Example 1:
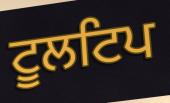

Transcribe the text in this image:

ਟੂਲਟਿਪ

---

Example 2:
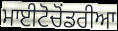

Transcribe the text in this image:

ਮਾਈਟੋਚੋਂਡਰੀਆ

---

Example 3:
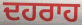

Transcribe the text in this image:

ਦਹਰਾਹ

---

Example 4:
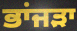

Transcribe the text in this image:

ਭਾਂਜੜਾ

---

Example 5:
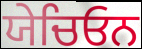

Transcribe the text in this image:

ਯੇਚਿਓਨ